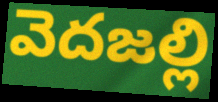
వెదజల్లి